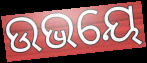
ଉଭୟେ